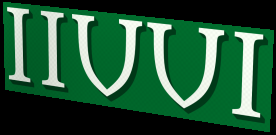
IIUUI